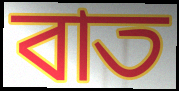
বাত